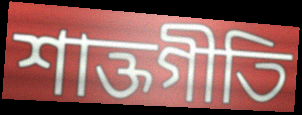
শাক্তগীতি